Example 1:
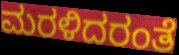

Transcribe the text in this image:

ಮರಳಿದರಂತೆ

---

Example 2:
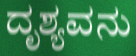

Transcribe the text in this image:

ದೃಶ್ಯವನು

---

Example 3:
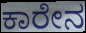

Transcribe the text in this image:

ಕಾರೇನ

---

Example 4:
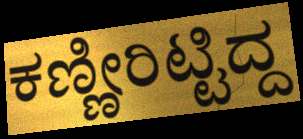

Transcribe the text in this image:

ಕಣ್ಣೀರಿಟ್ಟಿದ್ದ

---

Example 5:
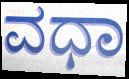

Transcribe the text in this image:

ವಧಾ